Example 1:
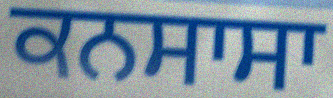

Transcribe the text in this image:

ਕਨਸਾਸਾ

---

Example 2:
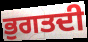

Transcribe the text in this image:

ਭੁਗਤਦੀ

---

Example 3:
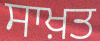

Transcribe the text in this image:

ਸਾਖ਼ਤ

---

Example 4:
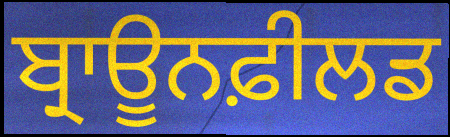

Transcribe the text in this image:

ਬ੍ਰਾਊਨਫ਼ੀਲਡ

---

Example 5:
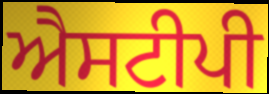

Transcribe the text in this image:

ਐਸਟੀਪੀ